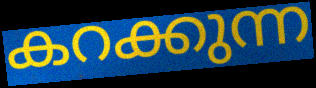
കറക്കുന്ന